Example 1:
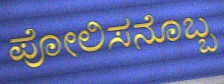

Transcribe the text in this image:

ಪೋಲಿಸನೊಬ್ಬ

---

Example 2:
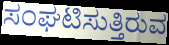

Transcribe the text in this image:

ಸಂಘಟಿಸುತ್ತಿರುವ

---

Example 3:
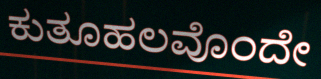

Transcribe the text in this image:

ಕುತೂಹಲವೊಂದೇ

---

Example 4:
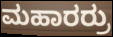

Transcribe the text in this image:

ಮಹಾರರ್ರು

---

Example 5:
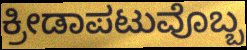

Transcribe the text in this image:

ಕ್ರೀಡಾಪಟುವೊಬ್ಬ